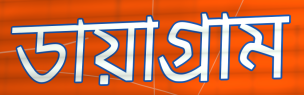
ডায়াগ্রাম